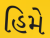
હિમે